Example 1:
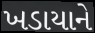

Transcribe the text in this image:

ખડાયાને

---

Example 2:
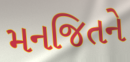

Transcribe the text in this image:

મનજિતને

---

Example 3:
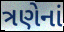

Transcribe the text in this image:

ત્રણેનાં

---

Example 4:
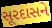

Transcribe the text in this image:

સૂરદાસને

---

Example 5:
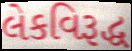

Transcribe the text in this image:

લેકવિરૂદ્ધ